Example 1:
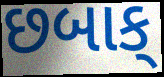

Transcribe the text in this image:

છબાક્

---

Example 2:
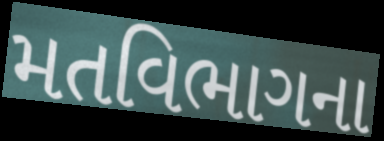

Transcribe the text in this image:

મતવિભાગના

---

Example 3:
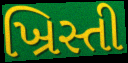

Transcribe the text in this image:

ખ્રિસ્તી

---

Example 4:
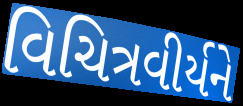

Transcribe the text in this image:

વિચિત્રવીર્યને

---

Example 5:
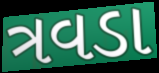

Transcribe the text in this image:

ત્રવડા